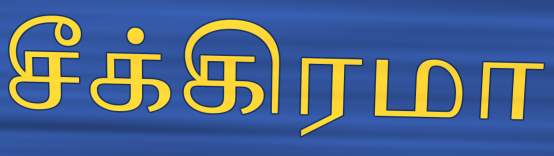
சீக்கிரமா